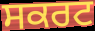
ਸਕਰਟ